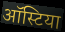
ऑस्टिया